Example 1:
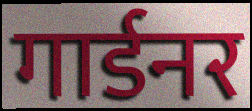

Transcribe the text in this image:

गार्डनर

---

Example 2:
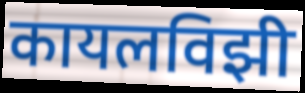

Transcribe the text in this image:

कायलविझी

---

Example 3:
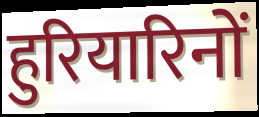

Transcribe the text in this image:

हुरियारिनों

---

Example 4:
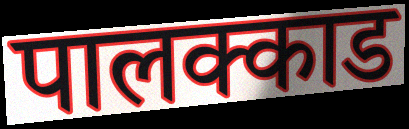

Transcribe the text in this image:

पालक्काड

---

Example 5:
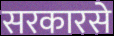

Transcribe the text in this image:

सरकारसे